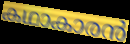
കഥാകാരൻ